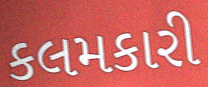
કલમકારી